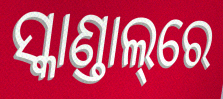
ସ୍କାଣ୍ଡାଲ୍‌ରେ